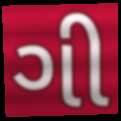
ગી